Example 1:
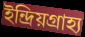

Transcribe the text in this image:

ইন্দ্রিয়গ্রাহ্য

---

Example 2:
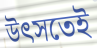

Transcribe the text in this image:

উৎসতেই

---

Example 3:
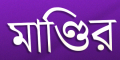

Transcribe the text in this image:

মাণ্ডির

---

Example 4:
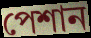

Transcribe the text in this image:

পেশান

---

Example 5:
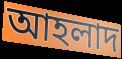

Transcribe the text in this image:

আহলাদ